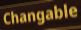
Changable